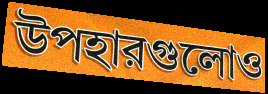
উপহারগুলোও